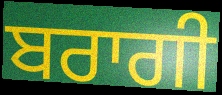
ਬਰਾਗੀ